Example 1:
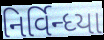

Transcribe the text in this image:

નિર્વિન્ધ્યા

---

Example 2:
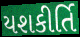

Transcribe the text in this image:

યશકીર્તિ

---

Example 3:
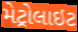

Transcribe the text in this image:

મેટ્રોલાઇટ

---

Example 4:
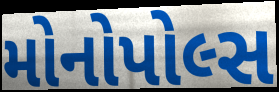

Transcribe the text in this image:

મોનોપોલ્સ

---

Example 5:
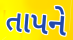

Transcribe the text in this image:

તાપને